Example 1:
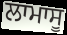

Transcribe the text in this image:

ਲਾਮਾਸੂ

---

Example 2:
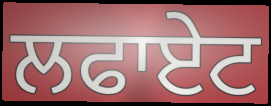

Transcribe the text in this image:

ਲਫਾਏਟ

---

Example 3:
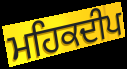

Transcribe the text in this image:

ਮਹਿਕਦੀਪ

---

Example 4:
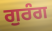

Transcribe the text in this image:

ਗੁਰੰਗ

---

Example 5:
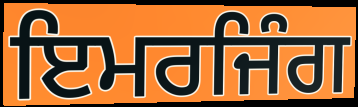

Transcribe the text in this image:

ਇਮਰਜਿੰਗ